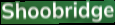
Shoobridge